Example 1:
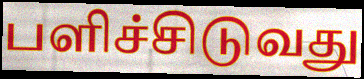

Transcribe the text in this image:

பளிச்சிடுவது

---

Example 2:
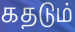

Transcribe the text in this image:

கதடும்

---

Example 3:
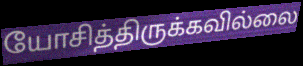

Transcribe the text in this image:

யோசித்திருக்கவில்லை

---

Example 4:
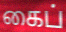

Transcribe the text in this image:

கைப்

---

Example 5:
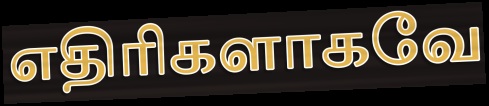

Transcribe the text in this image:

எதிரிகளாகவே